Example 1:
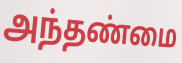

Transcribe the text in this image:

அந்தண்மை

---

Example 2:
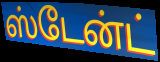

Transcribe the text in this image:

ஸ்டேன்ட்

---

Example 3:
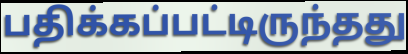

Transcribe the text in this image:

பதிக்கப்பட்டிருந்தது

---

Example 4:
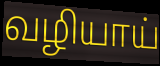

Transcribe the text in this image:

வழியாய்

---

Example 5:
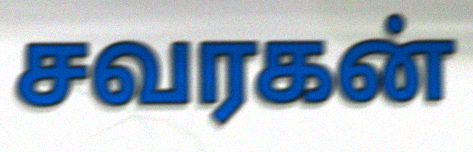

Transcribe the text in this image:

சவரகன்